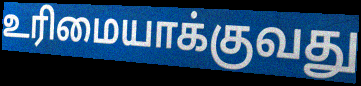
உரிமையாக்குவது